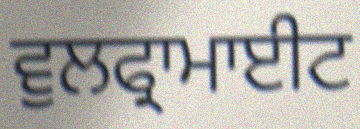
ਵੁਲਫ੍ਰਾਮਾਈਟ